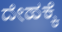
ದೇಹಕ್ಕೆ